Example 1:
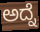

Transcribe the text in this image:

ಅದ್ನೆ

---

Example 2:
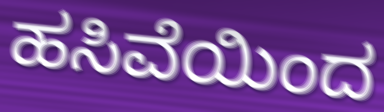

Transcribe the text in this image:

ಹಸಿವೆಯಿಂದ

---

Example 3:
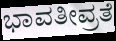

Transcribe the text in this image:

ಭಾವತೀವ್ರತೆ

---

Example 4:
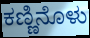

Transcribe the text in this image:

ಕಣ್ಣಿನೊಳು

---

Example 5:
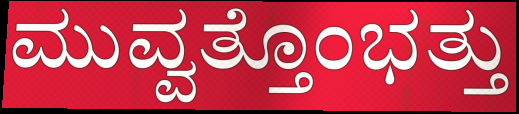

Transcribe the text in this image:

ಮುವ್ವತ್ತೊಂಭತ್ತು